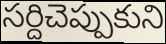
సర్దిచెప్పుకుని